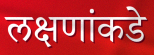
लक्षणांकडे